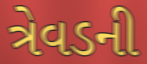
ત્રેવડની